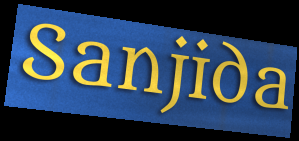
Sanjida